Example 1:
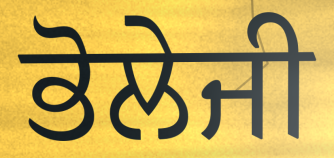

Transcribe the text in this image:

ਭੋਲੇਜੀ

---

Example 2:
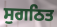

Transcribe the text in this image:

ਸੁਗਠਿਤ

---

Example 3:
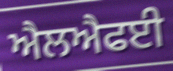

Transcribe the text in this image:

ਐਲਐਫਈ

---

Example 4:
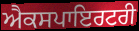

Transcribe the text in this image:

ਐਕਸਪਾਇਰਟਰੀ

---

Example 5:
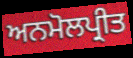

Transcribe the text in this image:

ਅਨਮੋਲਪ੍ਰੀਤ